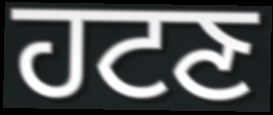
ਹਟਣ